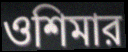
ওশিমার